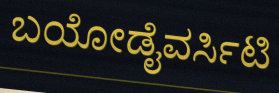
ಬಯೋಡೈವರ್ಸಿಟಿ